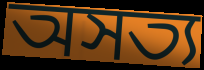
অসত্য